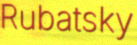
Rubatsky